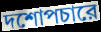
দশোপচারে